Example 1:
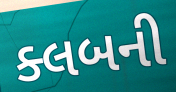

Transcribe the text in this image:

ક્લબની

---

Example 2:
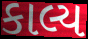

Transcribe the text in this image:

કાલ્ય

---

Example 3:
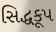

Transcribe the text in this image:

સિદ્ધકૂપ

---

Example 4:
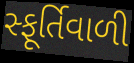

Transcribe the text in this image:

સ્ફૂર્તિવાળી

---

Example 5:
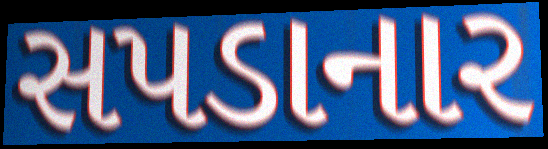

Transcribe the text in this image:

સપડાનાર